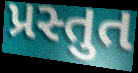
પ્રસ્તુત